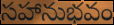
సహానుభవం